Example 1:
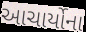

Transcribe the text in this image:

આચાર્યોના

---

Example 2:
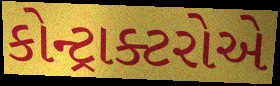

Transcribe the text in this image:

કોન્ટ્રાક્ટરોએ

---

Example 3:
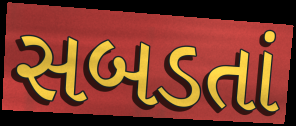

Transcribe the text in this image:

સબડતાં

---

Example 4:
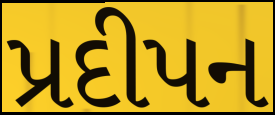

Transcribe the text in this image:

પ્રદીપન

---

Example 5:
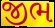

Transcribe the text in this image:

જીભ